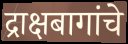
द्राक्षबागांचे